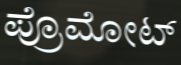
ಪ್ರೊಮೋಟ್